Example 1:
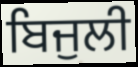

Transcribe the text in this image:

ਬਿਜੁਲੀ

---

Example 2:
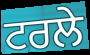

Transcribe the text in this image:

ਟਰਲੇ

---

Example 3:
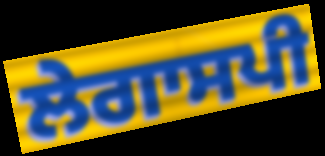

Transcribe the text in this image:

ਲੇਗਾਸਪੀ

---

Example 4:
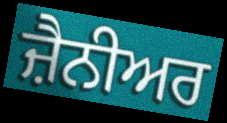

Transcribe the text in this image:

ਜ਼ੈਨੀਅਰ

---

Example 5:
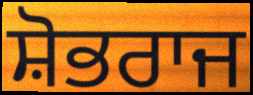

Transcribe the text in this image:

ਸ਼ੋਭਰਾਜ